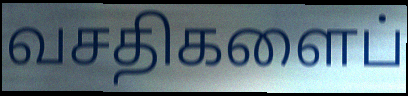
வசதிகளைப்